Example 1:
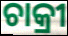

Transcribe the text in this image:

ଚାକ୍ରୀ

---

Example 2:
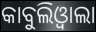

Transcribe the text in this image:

କାବୁଲିଓ୍ୱାଲା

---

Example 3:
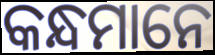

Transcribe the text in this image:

କନ୍ଧମାନେ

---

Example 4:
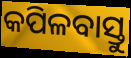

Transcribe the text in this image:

କପିଳବାସ୍ତୁ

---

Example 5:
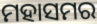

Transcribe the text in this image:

ମହାସମର